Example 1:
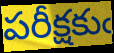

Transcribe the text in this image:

పరీక్షకుఁ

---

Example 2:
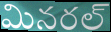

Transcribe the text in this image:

మినరల్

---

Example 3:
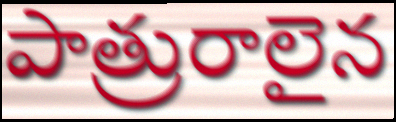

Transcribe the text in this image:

పాత్రురాలైన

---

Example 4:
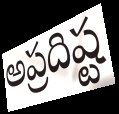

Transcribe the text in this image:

అప్రదిష్ట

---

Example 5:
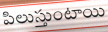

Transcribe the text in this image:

పిలుస్తుంటాయి